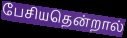
பேசியதென்றால்